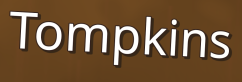
Tompkins